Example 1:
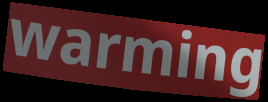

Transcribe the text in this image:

warming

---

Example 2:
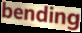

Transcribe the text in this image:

bending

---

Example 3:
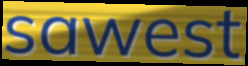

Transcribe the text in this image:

sawest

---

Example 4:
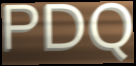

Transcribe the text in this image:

PDQ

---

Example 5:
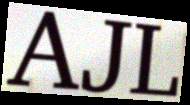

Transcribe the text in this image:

AJL